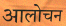
आलोचन